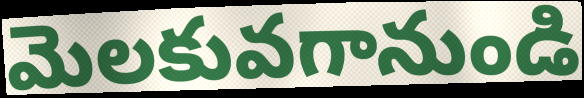
మెలకువగానుండి